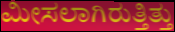
ಮೀಸಲಾಗಿರುತ್ತಿತ್ತು